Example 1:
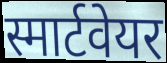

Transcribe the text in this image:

स्मार्टवेयर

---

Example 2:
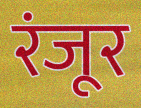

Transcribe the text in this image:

रंजूर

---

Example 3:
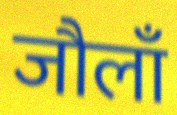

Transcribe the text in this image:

जौलाँ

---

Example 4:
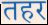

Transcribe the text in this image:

तहर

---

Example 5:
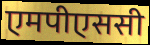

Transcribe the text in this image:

एमपीएससी